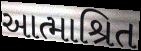
આત્માશ્રિત